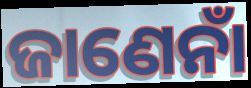
ଜାଣେନାଁ